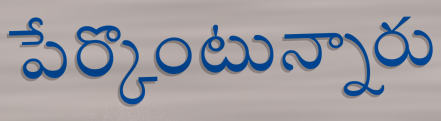
పేర్కొంటున్నారు